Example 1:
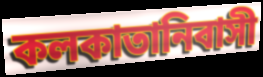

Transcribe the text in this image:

কলকাতানিবাসী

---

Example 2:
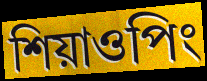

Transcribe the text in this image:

শিয়াওপিং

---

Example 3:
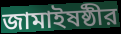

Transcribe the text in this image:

জামাইষষ্ঠীর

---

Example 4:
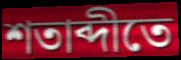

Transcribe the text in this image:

শতাব্দীতে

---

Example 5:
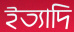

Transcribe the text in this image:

ইত্যাদি